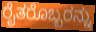
ರೈತರೊಬ್ಬರನ್ನು